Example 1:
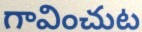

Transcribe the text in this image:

గావించుట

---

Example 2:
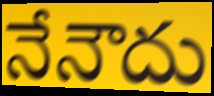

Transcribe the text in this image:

నేనౌదు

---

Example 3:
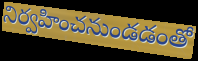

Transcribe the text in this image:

నిర్వహించనుండడంతో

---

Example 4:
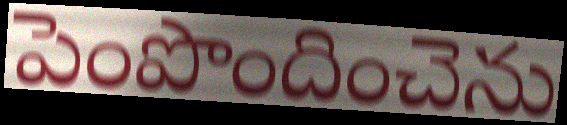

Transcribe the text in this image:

పెంపొందించెను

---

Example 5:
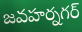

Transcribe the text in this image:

జవహర్నగర్